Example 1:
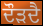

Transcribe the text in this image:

ਦੌੜਦੈ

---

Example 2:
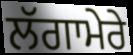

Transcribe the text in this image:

ਲੱਗਾਮੇਰੇ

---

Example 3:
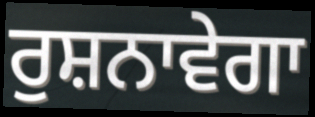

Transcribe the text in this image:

ਰੁਸ਼ਨਾਵੇਗਾ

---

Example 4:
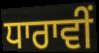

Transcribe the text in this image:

ਧਾਰਾਵੀਂ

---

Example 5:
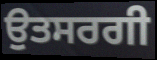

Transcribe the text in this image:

ਉਤਸਰਗੀ